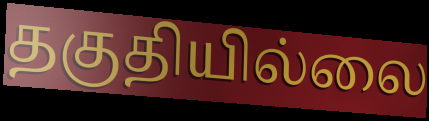
தகுதியில்லை